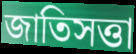
জাতিসত্তা